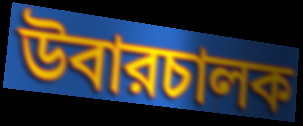
উবারচালক